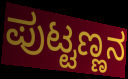
ಪುಟ್ಟಣ್ಣನ